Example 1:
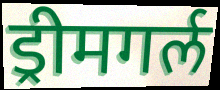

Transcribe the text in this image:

ड्रीमगर्ल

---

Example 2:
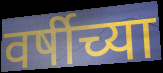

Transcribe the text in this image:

वर्षीच्या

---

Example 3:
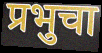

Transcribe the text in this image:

प्रभुचा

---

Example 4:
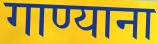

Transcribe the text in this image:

गाण्याना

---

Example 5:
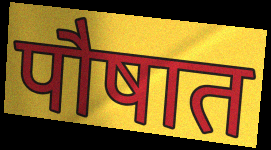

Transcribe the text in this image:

पौषात